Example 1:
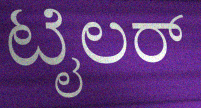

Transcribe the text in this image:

ಟೈಲರ್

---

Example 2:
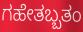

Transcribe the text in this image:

ಗಹೇತಬ್ಬತಂ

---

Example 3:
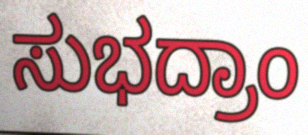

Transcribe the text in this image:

ಸುಭದ್ರಾಂ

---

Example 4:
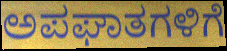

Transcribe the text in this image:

ಅಪಘಾತಗಳಿಗೆ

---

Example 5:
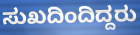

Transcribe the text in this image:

ಸುಖದಿಂದಿದ್ದರು